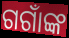
ଗଗାଁଙ୍କ